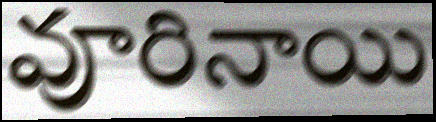
వూరినాయి